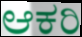
ಆಕರಿ